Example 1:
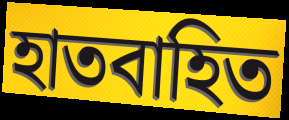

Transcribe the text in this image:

হাতবাহিত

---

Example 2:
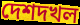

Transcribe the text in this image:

দেশদখল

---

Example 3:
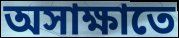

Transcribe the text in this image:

অসাক্ষাতে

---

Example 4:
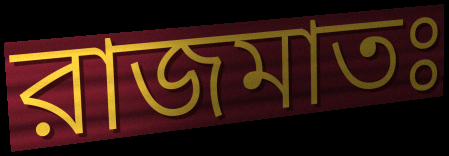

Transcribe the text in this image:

রাজমাতঃ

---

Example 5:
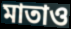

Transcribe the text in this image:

মাতাও